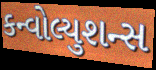
કન્વોલ્યુશન્સ